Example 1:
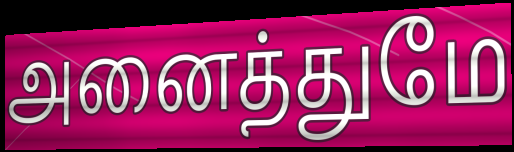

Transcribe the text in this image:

அனைத்துமே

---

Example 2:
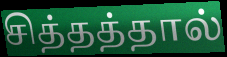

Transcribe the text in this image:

சித்தத்தால்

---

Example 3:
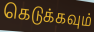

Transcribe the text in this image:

கெடுக்கவும்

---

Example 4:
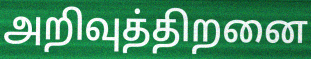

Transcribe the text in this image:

அறிவுத்திறனை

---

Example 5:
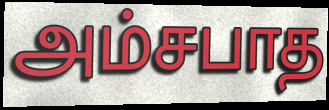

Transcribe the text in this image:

அம்சபாத